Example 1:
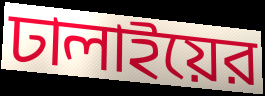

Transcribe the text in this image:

ঢালাইয়ের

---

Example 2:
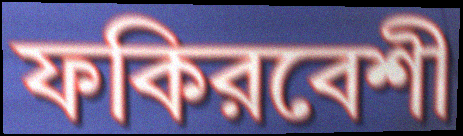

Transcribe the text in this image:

ফকিরবেশী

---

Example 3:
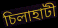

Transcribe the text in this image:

চিলাহাটী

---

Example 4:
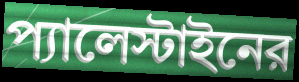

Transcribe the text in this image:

প্যালেস্টাইনের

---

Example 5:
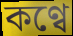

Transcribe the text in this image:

কণ্বে